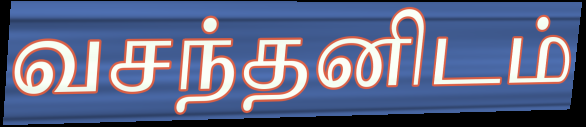
வசந்தனிடம்